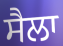
ਸੈਲਾ